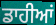
ਡਾਹੀਆਂ